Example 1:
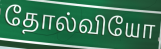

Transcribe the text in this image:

தோல்வியோ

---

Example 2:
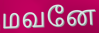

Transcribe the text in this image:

மவனே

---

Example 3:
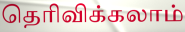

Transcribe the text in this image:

தெரிவிக்கலாம்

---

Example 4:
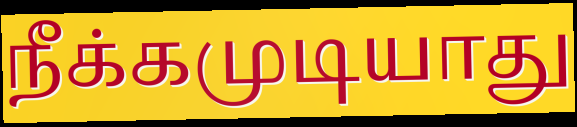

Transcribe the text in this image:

நீக்கமுடியாது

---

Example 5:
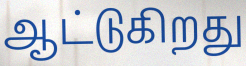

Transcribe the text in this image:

ஆட்டுகிறது